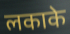
लकाके